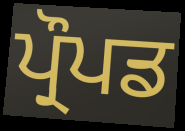
ਪ੍ਰੌਪਡ